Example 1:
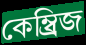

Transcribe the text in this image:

কেম্ব্ৰিজ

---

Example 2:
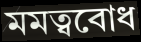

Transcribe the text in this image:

মমত্ববোধ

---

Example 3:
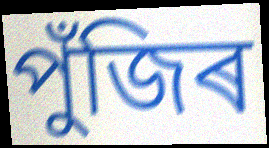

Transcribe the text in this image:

পুঁজিৰ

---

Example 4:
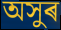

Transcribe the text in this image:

অসুৰ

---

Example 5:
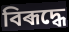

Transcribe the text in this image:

বিৰূদ্ধে